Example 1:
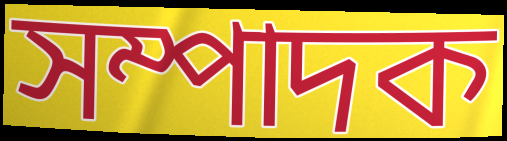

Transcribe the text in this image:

সম্পাদক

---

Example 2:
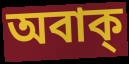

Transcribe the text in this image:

অবাক্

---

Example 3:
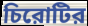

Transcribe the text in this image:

চিরোটির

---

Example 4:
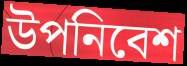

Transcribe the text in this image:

উপনিবেশ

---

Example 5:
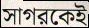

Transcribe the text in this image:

সাগরকেই